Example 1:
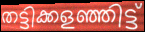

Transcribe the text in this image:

തട്ടിക്കളഞ്ഞിട്ട്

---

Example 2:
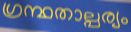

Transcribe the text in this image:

ഗ്രന്ഥതാല്പര്യം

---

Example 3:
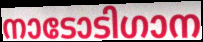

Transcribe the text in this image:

നാടോടിഗാന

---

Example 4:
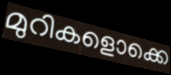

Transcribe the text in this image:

മുറികളൊക്കെ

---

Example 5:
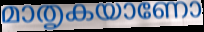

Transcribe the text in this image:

മാതൃകയാണോ